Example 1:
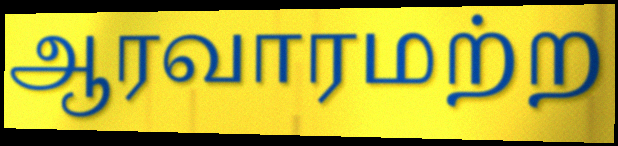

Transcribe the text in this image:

ஆரவாரமற்ற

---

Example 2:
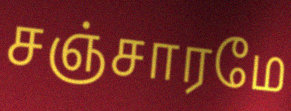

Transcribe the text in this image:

சஞ்சாரமே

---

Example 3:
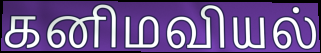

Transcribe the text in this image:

கனிமவியல்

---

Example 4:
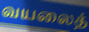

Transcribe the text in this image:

வயலைத்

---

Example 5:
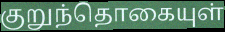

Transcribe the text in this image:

குறுந்தொகையுள்